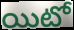
యిటో